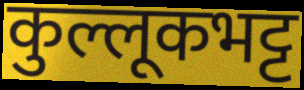
कुल्लूकभट्ट